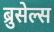
ब्रुसेल्स